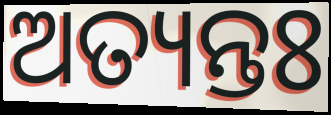
ଅତ୍ୟନ୍ତଃ